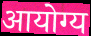
आयोग्य